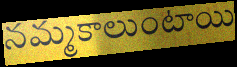
నమ్మకాలుంటాయి